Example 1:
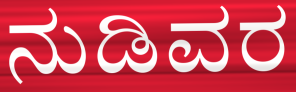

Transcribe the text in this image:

ನುಡಿವರ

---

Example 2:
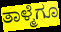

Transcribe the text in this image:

ತಾಳ್ಮೆಗೂ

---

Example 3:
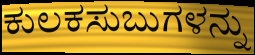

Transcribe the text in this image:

ಕುಲಕಸುಬುಗಳನ್ನು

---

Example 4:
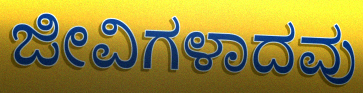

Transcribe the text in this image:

ಜೀವಿಗಳಾದವು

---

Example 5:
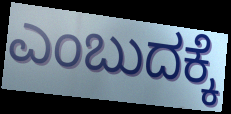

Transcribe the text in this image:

ಎಂಬುದಕ್ಕೆ